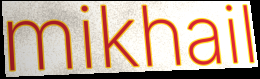
mikhail